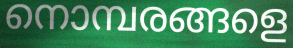
നൊമ്പരങ്ങളെ